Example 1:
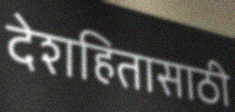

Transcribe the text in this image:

देशहितासाठी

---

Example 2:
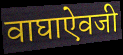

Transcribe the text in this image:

वाघाऐवजी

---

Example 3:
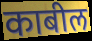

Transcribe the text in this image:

काबील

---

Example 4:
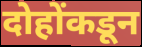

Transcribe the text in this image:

दोहोंकडून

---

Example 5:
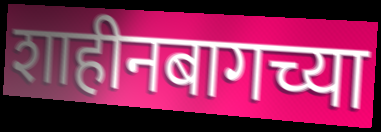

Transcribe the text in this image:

शाहीनबागच्या